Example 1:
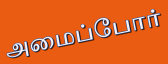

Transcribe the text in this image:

அமைப்போர்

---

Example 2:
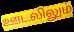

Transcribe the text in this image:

ஊடலிலும்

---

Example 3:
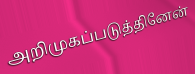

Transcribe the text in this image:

அறிமுகப்படுத்தினேன்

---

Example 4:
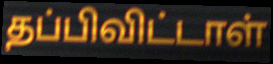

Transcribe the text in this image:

தப்பிவிட்டாள்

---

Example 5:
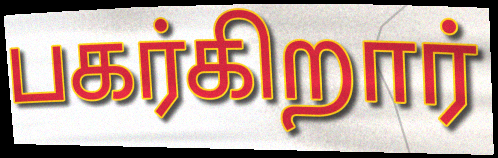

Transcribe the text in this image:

பகர்கிறார்